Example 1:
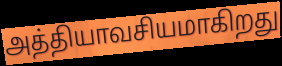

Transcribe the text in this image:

அத்தியாவசியமாகிறது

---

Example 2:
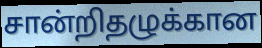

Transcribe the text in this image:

சான்றிதழுக்கான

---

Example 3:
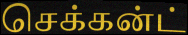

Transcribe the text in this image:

செக்கன்ட்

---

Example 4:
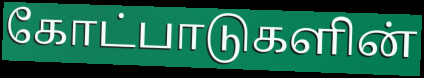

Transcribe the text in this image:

கோட்பாடுகளின்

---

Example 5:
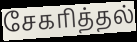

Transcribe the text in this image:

சேகரித்தல்